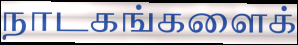
நாடகங்களைக்